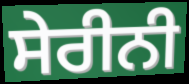
ਸੇਰੀਨੀ